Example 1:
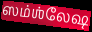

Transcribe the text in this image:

ஸம்ஶ்லேஷ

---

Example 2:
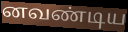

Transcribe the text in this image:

னவண்டிய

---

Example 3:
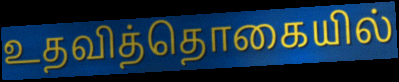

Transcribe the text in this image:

உதவித்தொகையில்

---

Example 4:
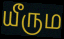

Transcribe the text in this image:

யீரும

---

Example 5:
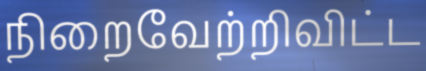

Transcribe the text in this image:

நிறைவேற்றிவிட்ட